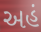
અહં